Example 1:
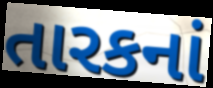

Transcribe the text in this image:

તારકનાં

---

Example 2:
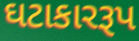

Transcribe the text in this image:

ઘટાકારરૂપ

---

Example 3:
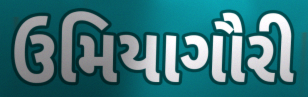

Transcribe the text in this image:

ઉમિયાગૌરી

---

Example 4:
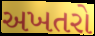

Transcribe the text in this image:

અખતરો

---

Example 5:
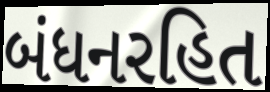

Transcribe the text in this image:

બંધનરહિત